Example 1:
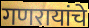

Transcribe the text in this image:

गणरायांचे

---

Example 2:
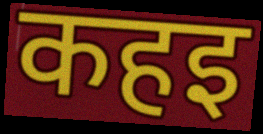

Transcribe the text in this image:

कहइ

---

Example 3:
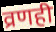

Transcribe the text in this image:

व्रणही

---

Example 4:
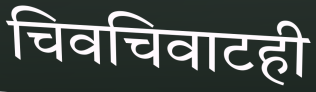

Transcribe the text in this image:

चिवचिवाटही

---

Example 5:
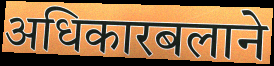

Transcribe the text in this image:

अधिकारबलाने